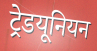
ट्रेडयूनियन